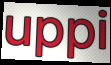
uppi